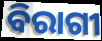
ବିରାଗୀ